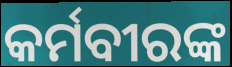
କର୍ମବୀରଙ୍କ